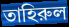
তাহিরুল